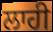
ਲਾਹੀ